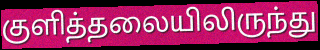
குளித்தலையிலிருந்து